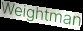
Weightman